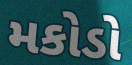
મકોડો